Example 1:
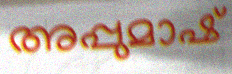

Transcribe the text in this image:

അപ്പുമാഷ്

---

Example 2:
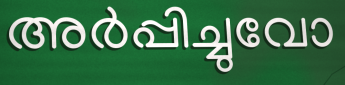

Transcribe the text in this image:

അർപ്പിച്ചുവോ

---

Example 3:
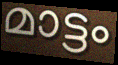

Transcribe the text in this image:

മാട്ടം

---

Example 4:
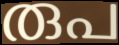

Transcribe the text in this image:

രുപ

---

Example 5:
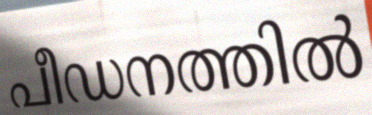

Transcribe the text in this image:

പീഡനത്തിൽ